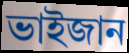
ভাইজান